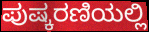
ಪುಷ್ಕರಣಿಯಲ್ಲಿ